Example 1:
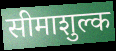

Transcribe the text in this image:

सीमाशुल्क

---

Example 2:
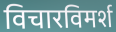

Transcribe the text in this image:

विचारविमर्श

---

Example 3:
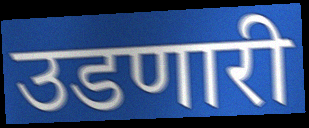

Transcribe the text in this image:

उडणारी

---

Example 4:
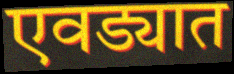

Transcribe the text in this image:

एवड्यात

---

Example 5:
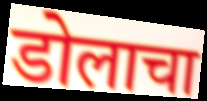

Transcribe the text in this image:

डोलाचा